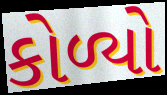
કોળ્યો